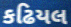
કઢિયલ